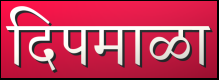
दिपमाळा